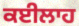
ਕਈਲਾਹ